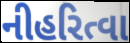
નીહરિત્વા